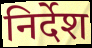
निर्देश